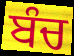
ਬੰਚ